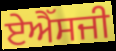
ਏਐੱਸਜੀ